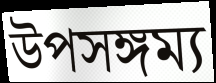
উপসঙ্গম্য